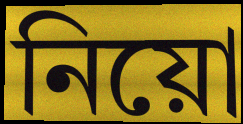
নিয়ো